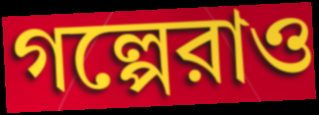
গল্পেরাও